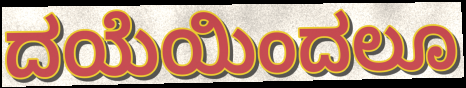
ದಯೆಯಿಂದಲೂ